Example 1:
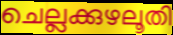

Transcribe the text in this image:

ചെല്ലക്കുഴലൂതി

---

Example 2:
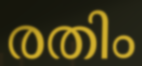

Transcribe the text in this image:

രതിം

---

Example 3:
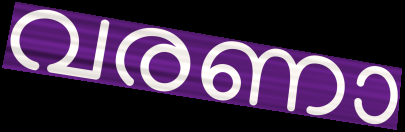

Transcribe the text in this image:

വരണാ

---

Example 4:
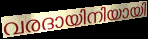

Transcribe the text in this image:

വരദായിനിയായി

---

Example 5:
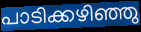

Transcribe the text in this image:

പാടിക്കഴിഞ്ഞു